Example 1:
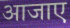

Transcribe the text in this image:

आजाए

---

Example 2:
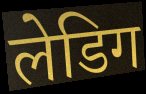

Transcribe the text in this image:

लेडिग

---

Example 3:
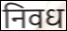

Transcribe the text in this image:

निवध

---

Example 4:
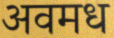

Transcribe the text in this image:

अवमध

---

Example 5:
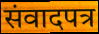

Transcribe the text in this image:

संवादपत्र